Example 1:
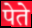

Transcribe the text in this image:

पेते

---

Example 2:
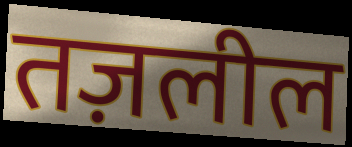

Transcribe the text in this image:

तज़लील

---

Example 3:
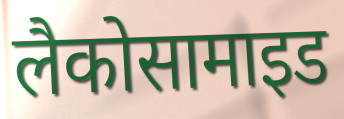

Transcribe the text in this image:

लैकोसामाइड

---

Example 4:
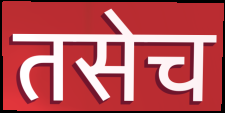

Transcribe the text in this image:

तसेच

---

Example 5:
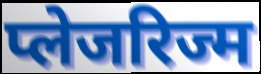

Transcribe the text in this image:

प्लेजरिज्म